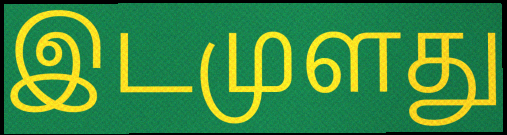
இடமுளது